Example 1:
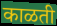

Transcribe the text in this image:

काळती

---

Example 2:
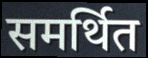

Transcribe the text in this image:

समर्थित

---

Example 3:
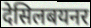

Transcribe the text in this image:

देसिलबयनर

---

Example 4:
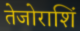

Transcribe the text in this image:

तेजोराशिं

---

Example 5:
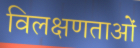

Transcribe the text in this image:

विलक्षणताओं